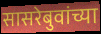
सासरेबुवांच्या